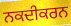
ਨਕਦੀਕਰਨ